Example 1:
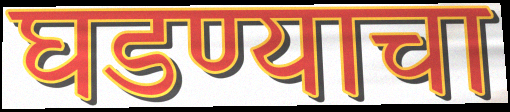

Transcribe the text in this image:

घडण्याचा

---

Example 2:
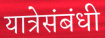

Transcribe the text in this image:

यात्रेसंबंधी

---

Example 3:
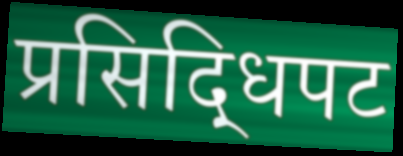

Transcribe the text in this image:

प्रसिद्धिपट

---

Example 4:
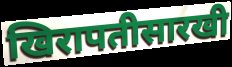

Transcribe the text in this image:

खिरापतीसारखी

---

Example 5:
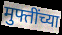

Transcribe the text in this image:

मुफ्तींच्या